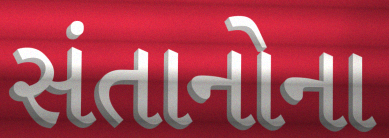
સંતાનોના